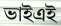
ভাইএই